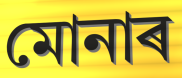
মোনাৰ